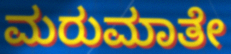
ಮರುಮಾತೇ